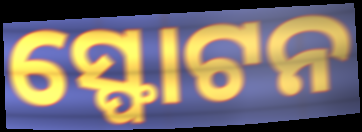
ସ୍ଫୋଟନ